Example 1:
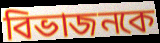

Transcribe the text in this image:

বিভাজনকে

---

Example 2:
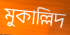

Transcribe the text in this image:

মুকাল্লিদ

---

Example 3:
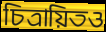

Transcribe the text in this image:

চিত্রায়িতও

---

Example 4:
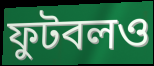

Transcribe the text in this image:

ফুটবলও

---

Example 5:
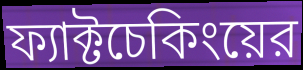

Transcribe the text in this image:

ফ্যাক্টচেকিংয়ের